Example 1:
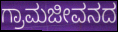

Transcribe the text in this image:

ಗ್ರಾಮಜೀವನದ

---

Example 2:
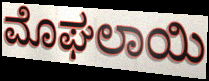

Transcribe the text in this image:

ಮೊಘಲಾಯಿ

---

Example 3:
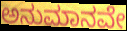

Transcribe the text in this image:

ಅನುಮಾನವೇ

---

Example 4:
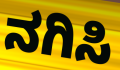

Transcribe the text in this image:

ನಗಿಸಿ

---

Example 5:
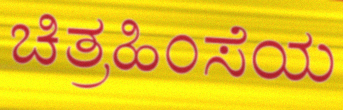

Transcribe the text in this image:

ಚಿತ್ರಹಿಂಸೆಯ